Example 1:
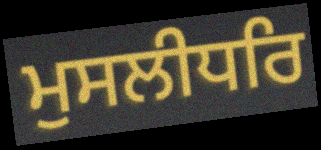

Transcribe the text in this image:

ਮੁਸਲੀਧਰਿ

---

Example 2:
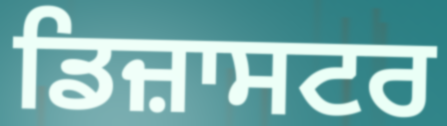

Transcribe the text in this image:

ਡਿਜ਼ਾਸਟਰ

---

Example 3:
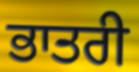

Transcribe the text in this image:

ਭਾਤਰੀ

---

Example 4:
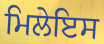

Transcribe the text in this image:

ਮਿਲੇਇਸ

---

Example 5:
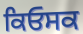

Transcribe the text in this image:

ਕਿਓਸਕ